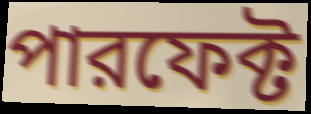
পারফেক্ট